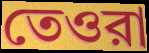
তেওরা